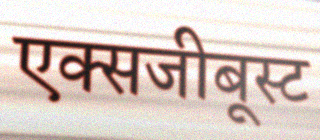
एक्सजीबूस्ट